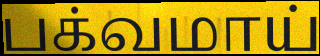
பக்வமாய்